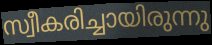
സ്വീകരിച്ചായിരുന്നു